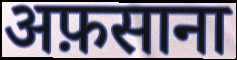
अफ़साना